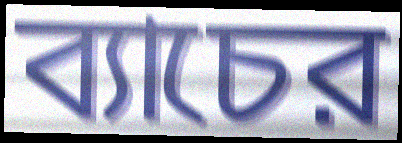
ব্যাচের